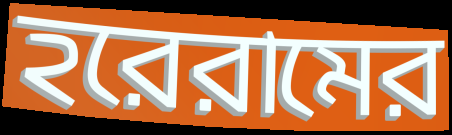
হরেরামের